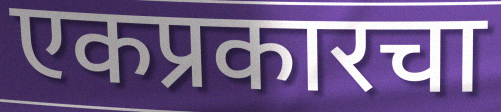
एकप्रकारचा